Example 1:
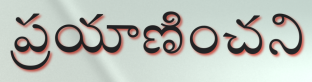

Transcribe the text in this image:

ప్రయాణించని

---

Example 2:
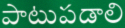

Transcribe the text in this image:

పాటుపడాలి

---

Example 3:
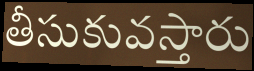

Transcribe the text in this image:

తీసుకువస్తారు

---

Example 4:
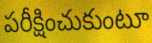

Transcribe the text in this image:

పరీక్షించుకుంటూ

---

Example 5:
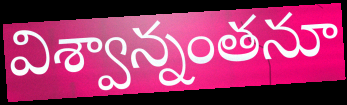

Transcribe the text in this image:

విశ్వాన్నంతనూ